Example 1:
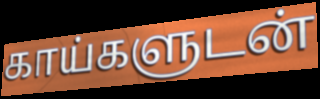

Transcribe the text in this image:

காய்களுடன்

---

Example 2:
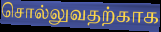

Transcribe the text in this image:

சொல்லுவதற்காக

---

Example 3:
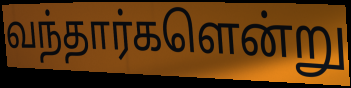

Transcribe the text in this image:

வந்தார்களென்று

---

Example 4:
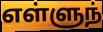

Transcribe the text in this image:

எள்ளுந்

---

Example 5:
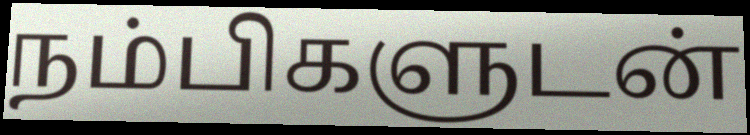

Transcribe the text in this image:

நம்பிகளுடன்